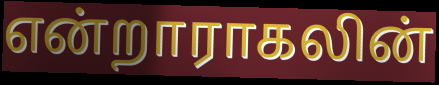
என்றாராகலின்